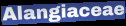
Alangiaceae